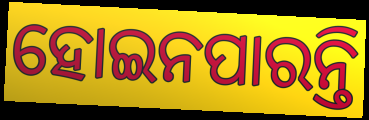
ହୋଇନପାରନ୍ତି